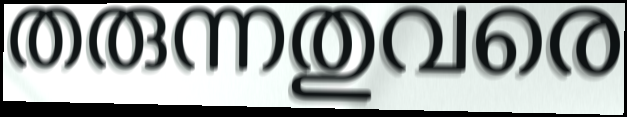
തരുന്നതുവരെ